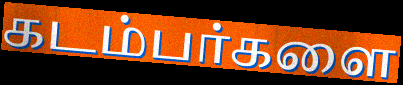
கடம்பர்களை